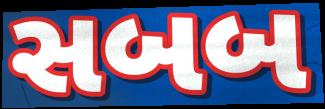
સબબ